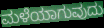
ಮಳೆಯಾಗುವುದು